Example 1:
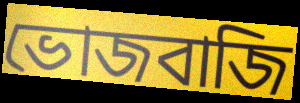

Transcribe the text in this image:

ভোজবাজি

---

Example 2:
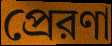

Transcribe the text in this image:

প্রেরণা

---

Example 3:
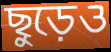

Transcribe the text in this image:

ছুড়েও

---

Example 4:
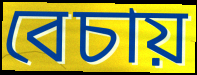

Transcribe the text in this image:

বেচায়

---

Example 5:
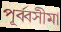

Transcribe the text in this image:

পূর্ব্বসীমা